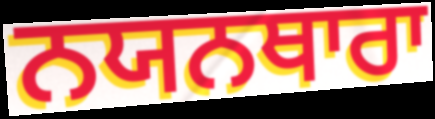
ਨਯਨਥਾਰਾ